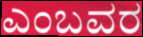
ಎಂಬವರ